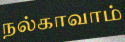
நல்காவாம்